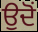
ਉਦੋਂ